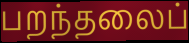
பறந்தலைப்